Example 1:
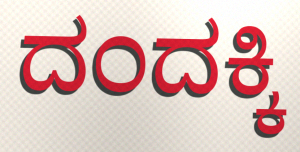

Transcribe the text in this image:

ದಂದಕ್ಕಿ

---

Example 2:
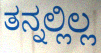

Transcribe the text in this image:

ತನ್ನಲ್ಲಿಲ್ಲ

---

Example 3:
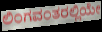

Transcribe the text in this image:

ಲಿಂಗವಂತರಲ್ಲಿಯೇ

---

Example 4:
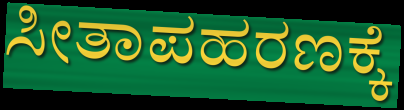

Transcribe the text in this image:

ಸೀತಾಪಹರಣಕ್ಕೆ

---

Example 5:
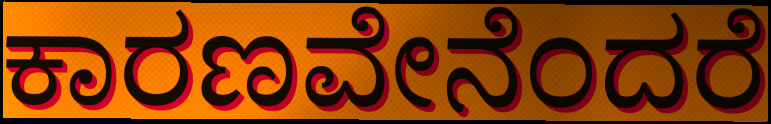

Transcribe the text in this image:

ಕಾರಣವೇನೆಂದರೆ